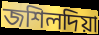
জশিলদিয়া